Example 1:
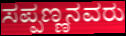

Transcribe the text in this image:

ಸಪ್ಪಣ್ಣನವರು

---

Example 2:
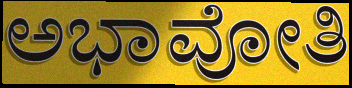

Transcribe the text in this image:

ಅಭಾವೋತಿ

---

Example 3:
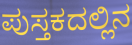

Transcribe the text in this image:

ಪುಸ್ತಕದಲ್ಲಿನ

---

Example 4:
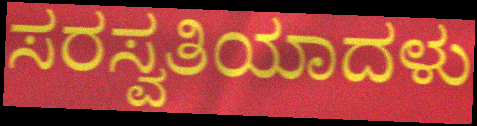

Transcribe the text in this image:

ಸರಸ್ವತಿಯಾದಳು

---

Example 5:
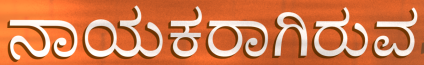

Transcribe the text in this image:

ನಾಯಕರಾಗಿರುವ